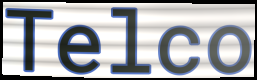
Telco